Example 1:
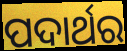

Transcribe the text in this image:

ପଦାର୍ଥର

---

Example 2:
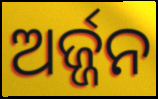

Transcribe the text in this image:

ଅର୍ଜ୍ଜନ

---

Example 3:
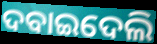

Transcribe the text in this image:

ଦବାଇଦେଲି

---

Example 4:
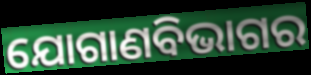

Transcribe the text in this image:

ଯୋଗାଣବିଭାଗର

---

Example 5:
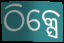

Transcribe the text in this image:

ଠିକ୍ସେ